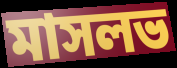
মাসলভ